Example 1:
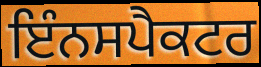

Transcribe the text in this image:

ਇੰਨਸਪੈਕਟਰ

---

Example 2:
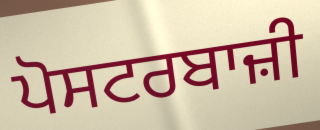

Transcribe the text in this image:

ਪੋਸਟਰਬਾਜ਼ੀ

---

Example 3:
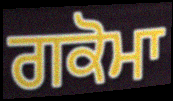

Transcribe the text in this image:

ਗਕੋਮਾ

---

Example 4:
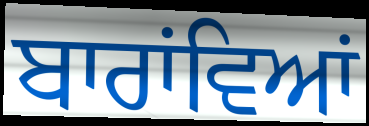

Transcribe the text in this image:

ਬਾਰਾਂਵਿਆਂ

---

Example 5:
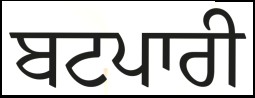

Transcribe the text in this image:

ਬਟਪਾਰੀ